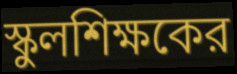
স্কুলশিক্ষকের